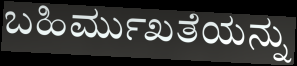
ಬಹಿರ್ಮುಖತೆಯನ್ನು